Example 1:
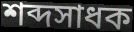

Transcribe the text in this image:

শব্দসাধক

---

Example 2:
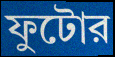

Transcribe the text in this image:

ফুটোর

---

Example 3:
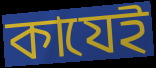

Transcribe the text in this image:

কাযেই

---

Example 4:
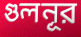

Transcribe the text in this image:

গুলনূর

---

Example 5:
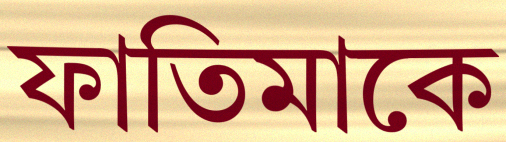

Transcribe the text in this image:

ফাতিমাকে